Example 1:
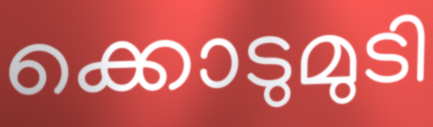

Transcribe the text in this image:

ക്കൊടുമുടി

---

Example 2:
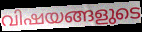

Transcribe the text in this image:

വിഷയങ്ങളുടെ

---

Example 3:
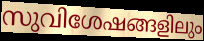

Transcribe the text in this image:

സുവിശേഷങ്ങളിലും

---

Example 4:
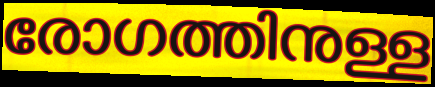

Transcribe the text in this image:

രോഗത്തിനുള്ള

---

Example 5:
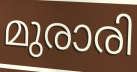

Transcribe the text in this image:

മുരാരി